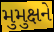
મુમુક્ષને